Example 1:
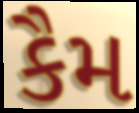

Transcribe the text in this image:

કૈમ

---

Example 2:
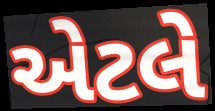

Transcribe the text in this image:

એટલે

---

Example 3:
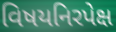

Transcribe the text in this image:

વિષયનિરપેક્ષ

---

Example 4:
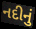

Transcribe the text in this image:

નદીનું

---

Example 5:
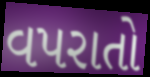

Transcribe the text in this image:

વપરાતો